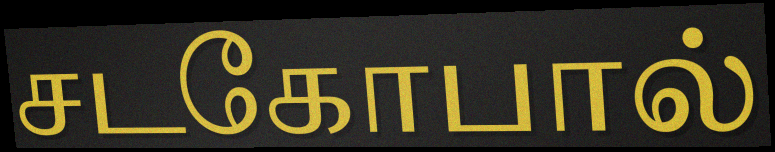
சடகோபால்